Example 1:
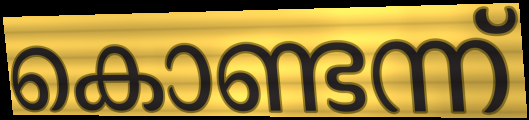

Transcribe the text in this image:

കൊണ്ടന്ന്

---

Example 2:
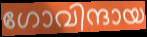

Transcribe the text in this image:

ഗോവിന്ദായ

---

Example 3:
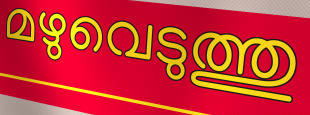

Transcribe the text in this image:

മഴുവെടുത്തു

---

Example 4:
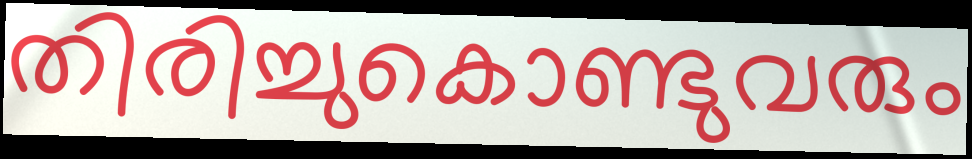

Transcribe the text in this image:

തിരിച്ചുകൊണ്ടുവരും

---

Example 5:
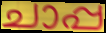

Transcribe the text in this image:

ചാപ്പ